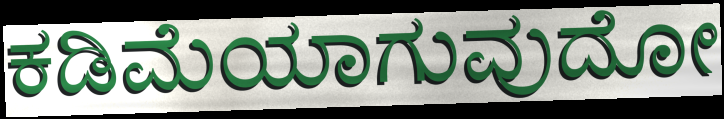
ಕಡಿಮೆಯಾಗುವುದೋ